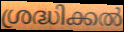
ശ്രദ്ധിക്കൽ